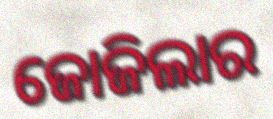
ଜୋଜିଲାର